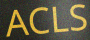
ACLS